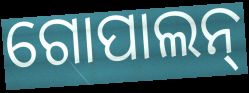
ଗୋପାଲନ୍